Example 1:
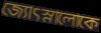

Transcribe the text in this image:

জ্যোৎস্নালোকে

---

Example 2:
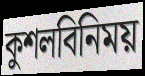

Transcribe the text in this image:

কুশলবিনিময়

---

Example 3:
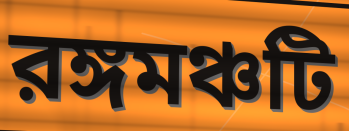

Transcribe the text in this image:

রঙ্গমঞ্চটি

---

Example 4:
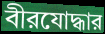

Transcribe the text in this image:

বীরযোদ্ধার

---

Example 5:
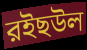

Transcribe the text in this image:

রইছউল